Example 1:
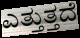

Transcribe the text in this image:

ಎತ್ತುತ್ತದೆ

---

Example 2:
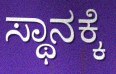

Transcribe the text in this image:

ಸ್ಥಾನಕ್ಕೆ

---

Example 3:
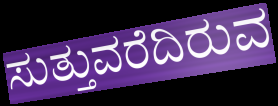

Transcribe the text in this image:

ಸುತ್ತುವರೆದಿರುವ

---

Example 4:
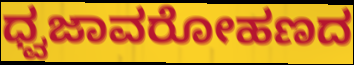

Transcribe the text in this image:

ಧ್ವಜಾವರೋಹಣದ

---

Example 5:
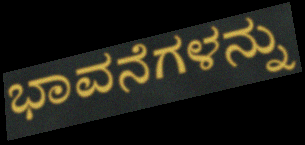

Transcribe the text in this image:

ಭಾವನೆಗಳನ್ನು